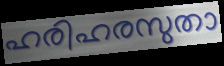
ഹരിഹരസുതാ